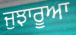
ਜੁਝਾਰੂਆ